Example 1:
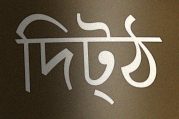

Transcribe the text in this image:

দিট্ঠ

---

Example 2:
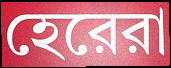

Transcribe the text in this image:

হেরেরা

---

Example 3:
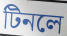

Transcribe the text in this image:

টিনলে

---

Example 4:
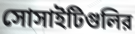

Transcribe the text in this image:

সোসাইটিগুলির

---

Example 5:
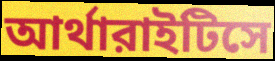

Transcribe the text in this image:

আর্থারাইটিসে